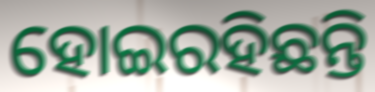
ହୋଇରହିଛନ୍ତି